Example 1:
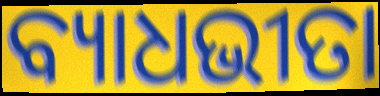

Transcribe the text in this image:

ବ୍ୟାଧଭୀତା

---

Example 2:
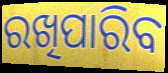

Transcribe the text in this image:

ରଖିପାରିବ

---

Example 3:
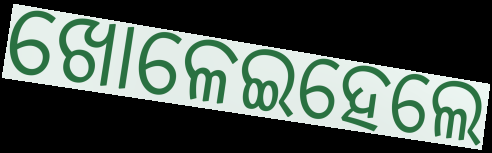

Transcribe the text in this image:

ଖୋଳେଇହେଲେ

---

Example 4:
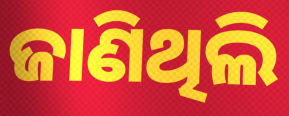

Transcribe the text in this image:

ଜାଣିଥିଲି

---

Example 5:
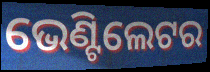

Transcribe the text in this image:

ଭେଣ୍ଟିଲେଟର